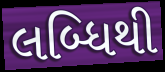
લબ્ધિથી